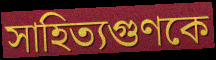
সাহিত্যগুণকে